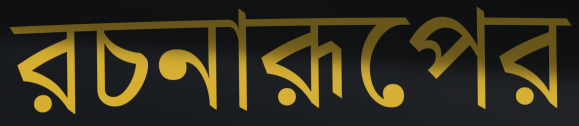
রচনারূপের